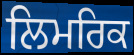
ਲਿਮਰਿਕ